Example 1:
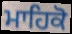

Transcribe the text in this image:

ਮਾਹਿਕੋ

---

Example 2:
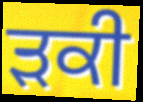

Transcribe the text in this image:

ੜਕੀ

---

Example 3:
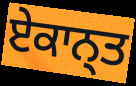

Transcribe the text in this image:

ਏਕਾਨ੍ਤ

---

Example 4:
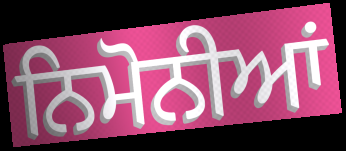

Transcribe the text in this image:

ਨਿਮੋਨੀਆਂ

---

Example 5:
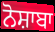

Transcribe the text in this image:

ਨੋਸ਼ਾਬਾ